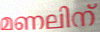
മണലിന്